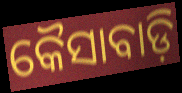
କୈସାବାଡ଼ି